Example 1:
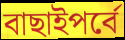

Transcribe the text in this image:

বাছাইপর্বে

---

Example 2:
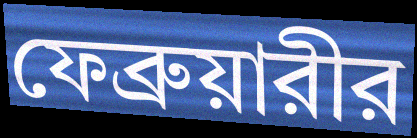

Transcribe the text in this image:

ফেব্রুয়ারীর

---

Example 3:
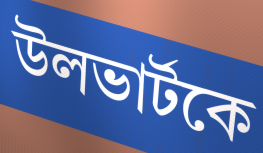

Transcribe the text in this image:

উলভার্টকে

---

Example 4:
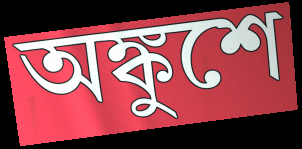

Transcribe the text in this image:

অঙ্কুশে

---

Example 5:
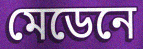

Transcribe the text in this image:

মেডেনে